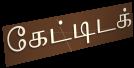
கேட்டிடக்